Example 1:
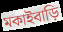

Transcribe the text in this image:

মকাইবাড়ি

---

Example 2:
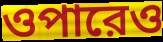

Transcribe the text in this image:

ওপারেও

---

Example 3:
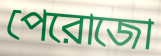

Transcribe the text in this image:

পেরোজো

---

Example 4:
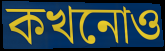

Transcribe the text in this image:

কখনোও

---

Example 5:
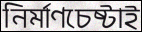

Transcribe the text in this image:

নির্মাণচেষ্টাই